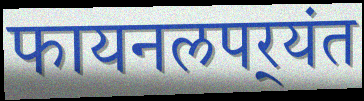
फायनलपर्यंत